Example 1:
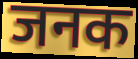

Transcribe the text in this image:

जनक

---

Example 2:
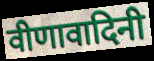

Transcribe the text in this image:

वीणावादिनी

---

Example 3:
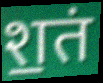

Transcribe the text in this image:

श॒तं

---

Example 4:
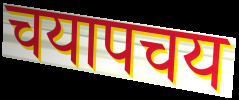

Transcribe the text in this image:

चयापचय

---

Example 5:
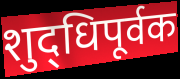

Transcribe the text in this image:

शुद्धिपूर्वक